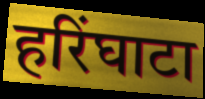
हरिंघाटा